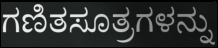
ಗಣಿತಸೂತ್ರಗಳನ್ನು